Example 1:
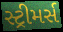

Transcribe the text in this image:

સ્ટ્રીમર્સ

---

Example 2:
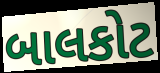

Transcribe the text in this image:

બાલકોટ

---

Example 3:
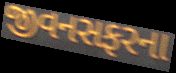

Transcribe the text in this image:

જીવનસફરના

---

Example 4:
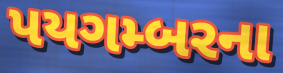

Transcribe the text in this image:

પયગમ્બરના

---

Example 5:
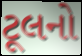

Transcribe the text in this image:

ટૂલનો